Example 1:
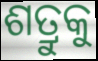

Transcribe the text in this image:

ଶତ୍ରୁକୁ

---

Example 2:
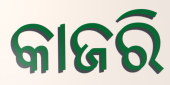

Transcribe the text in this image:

କାଜରି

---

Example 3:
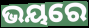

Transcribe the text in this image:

ଭୟରେ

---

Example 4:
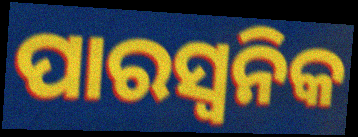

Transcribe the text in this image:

ପାରସ୍ୱନିକ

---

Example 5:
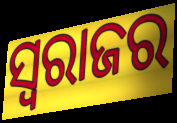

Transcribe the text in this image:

ସ୍ବରାଜର